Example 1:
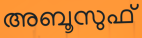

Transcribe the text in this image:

അബൂസുഫ്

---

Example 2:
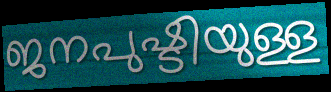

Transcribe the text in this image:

ജനപുഷ്ടിയുള്ള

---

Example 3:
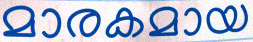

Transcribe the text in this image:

മാരകമായ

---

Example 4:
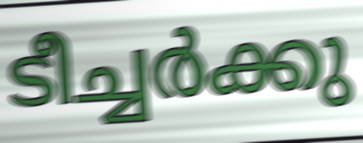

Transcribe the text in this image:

ടീച്ചർക്കു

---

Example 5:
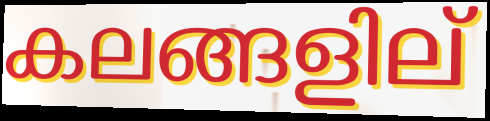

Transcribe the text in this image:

കലങ്ങളില്